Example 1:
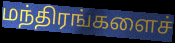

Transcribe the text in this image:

மந்திரங்களைச்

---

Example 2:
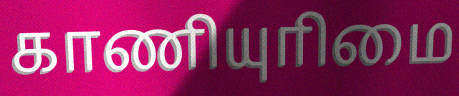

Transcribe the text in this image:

காணியுரிமை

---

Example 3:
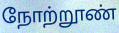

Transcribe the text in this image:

நோற்றூண்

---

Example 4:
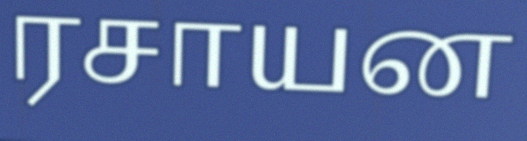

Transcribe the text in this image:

ரசாயன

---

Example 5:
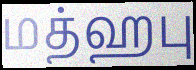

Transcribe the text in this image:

மத்ஹபு